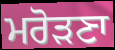
ਮਰੋੜਣਾ